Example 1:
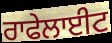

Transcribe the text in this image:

ਰਾਫੇਲਾਈਟ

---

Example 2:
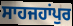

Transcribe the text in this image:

ਸਾਹਜਹਾਂਪੁਰ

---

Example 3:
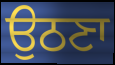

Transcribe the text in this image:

ਉਠਣਾ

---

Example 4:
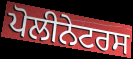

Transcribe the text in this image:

ਪੋਲੀਨੇਟਰਸ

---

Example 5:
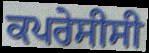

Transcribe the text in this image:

ਕਪਰੇਸੀਸੀ